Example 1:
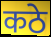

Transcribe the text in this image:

कठे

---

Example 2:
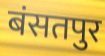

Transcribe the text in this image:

बंसतपुर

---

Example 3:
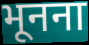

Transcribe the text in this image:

भूनना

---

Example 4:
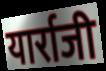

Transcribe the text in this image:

यार्राजी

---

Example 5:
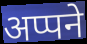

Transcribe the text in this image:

अप्पने